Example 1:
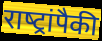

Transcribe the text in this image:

राष्ट्रांपैकी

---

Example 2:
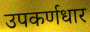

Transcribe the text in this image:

उपकर्णधार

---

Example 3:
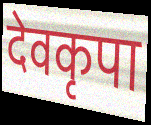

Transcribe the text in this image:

देवकृपा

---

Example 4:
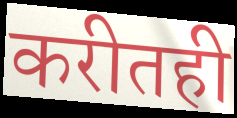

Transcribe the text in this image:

करीतही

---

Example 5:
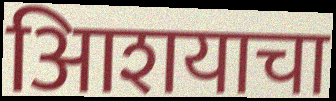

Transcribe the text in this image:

आिशयाचा